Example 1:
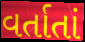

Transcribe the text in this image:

વર્તાતાં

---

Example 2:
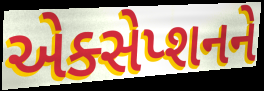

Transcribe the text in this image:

એક્સેપ્શનને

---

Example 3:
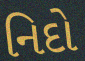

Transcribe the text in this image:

નિદો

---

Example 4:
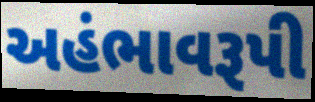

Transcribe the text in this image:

અહંભાવરૂપી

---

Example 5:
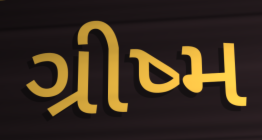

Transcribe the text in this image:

ગ્રીષ્મ